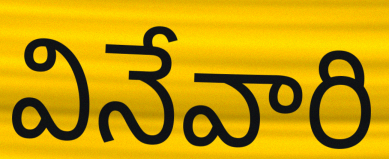
వినేవారి